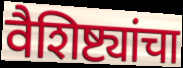
वैशिष्ट्यांचा